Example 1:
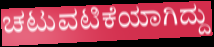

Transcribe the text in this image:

ಚಟುವಟಿಕೆಯಾಗಿದ್ದು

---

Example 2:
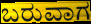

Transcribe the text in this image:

ಬರುವಾಗ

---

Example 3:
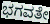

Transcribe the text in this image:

ಭಗವತೇ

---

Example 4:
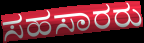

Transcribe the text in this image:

ಸಹಸಾರರು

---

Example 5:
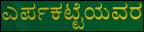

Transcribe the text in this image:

ಎರ್ಪಕಟ್ಟೆಯವರ